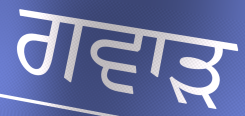
ਗਵਾੜ